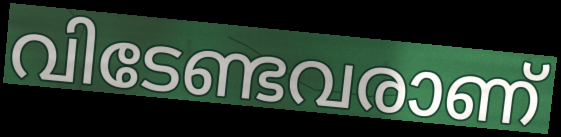
വിടേണ്ടവരാണ്